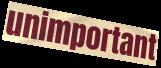
unimportant